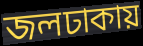
জলঢাকায়